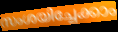
സംശയിച്ചേക്കാം